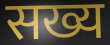
सख्य